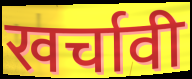
खर्चावी